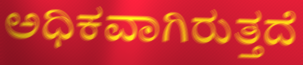
ಅಧಿಕವಾಗಿರುತ್ತದೆ